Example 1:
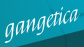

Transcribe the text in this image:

gangetica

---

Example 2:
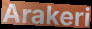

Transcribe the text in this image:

Arakeri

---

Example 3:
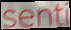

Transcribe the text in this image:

senti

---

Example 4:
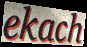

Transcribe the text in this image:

ekach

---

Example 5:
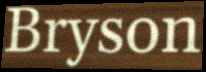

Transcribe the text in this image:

Bryson